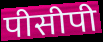
पीसीपी